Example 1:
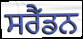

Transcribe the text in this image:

ਸਰੈਂਡਨ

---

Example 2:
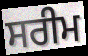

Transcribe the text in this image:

ਸਰੀਮ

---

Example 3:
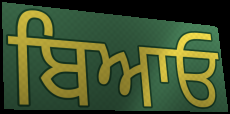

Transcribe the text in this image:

ਬਿਆਓ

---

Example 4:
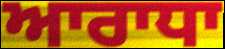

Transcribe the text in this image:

ਆਰਾਧਾ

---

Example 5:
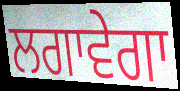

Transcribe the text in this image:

ਲਗਾਵੇਗਾ